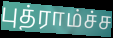
புத்ராம்ச்ச